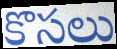
కొసలు